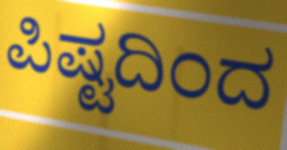
ಪಿಷ್ಟದಿಂದ